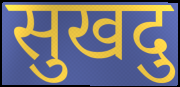
सुखदु